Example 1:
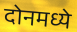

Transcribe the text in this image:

दोनमध्ये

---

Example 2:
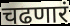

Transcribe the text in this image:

चढणारं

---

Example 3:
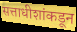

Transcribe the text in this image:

सत्ताधीशांकडून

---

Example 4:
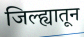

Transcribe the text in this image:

जिल्ह्यातून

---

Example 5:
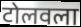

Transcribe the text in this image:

टोलवला